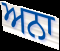
ਅਨਾ